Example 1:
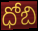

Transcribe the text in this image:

ధోబి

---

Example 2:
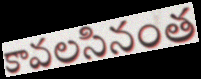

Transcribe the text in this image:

కావలసినంత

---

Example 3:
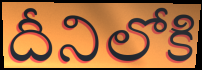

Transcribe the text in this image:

దీనిలోకి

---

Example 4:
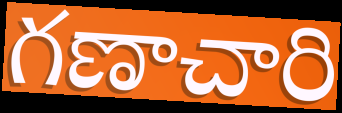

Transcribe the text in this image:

గణాచారి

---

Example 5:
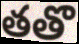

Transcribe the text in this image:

తతొ